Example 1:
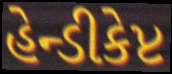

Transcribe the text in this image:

હેન્ડીકેપ્ટ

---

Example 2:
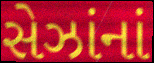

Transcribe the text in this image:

સેઝાંનાં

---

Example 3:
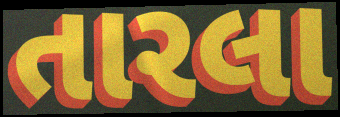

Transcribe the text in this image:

તારલા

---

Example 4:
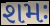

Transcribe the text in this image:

શમઃ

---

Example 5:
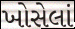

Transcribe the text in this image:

ખોસેલાં